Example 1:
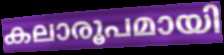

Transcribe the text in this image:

കലാരൂപമായി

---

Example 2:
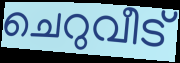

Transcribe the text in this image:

ചെറുവീട്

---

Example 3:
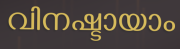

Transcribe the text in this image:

വിനഷ്ടായാം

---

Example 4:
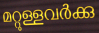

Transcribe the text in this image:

മറ്റുള്ളവർക്കു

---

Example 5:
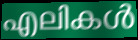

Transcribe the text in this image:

എലികൾ